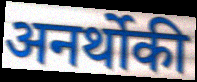
अनर्थोकी